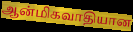
ஆன்மிகவாதியான